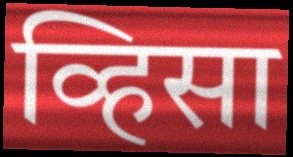
व्हिसा